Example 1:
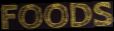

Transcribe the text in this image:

FOODS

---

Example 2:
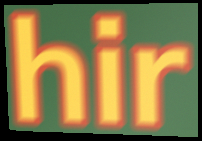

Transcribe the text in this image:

hir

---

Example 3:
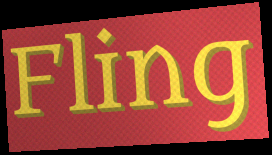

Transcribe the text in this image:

Fling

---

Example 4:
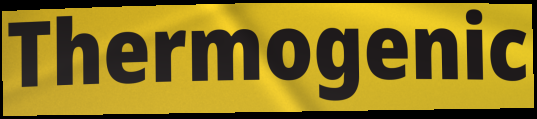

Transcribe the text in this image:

Thermogenic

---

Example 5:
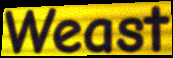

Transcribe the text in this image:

Weast